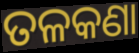
ତଳକଣା